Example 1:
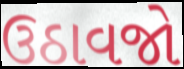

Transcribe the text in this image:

ઉઠાવજો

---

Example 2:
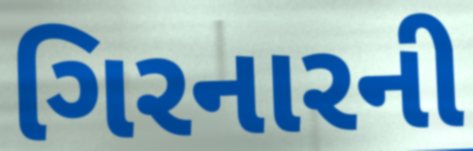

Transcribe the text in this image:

ગિરનારની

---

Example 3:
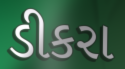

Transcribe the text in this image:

ડીકરા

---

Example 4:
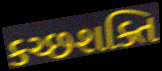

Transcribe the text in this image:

કચ્છશક્તિ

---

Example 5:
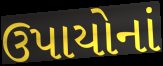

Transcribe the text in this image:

ઉપાયોનાં